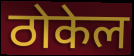
ठोकेल